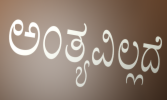
ಅಂತ್ಯವಿಲ್ಲದೆ